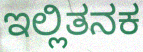
ಇಲ್ಲಿತನಕ